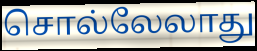
சொல்லேலாது